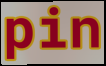
pin